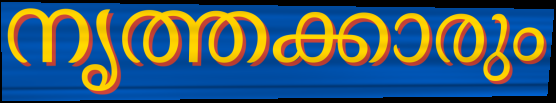
നൃത്തക്കാരും